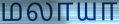
மலாயா